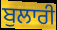
ਬੁਲਾਰੀ